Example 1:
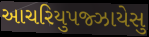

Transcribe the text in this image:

આચરિયુપજ્ઝાયેસુ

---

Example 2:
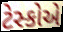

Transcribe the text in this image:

ટેસ્કોએ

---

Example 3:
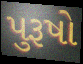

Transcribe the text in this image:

પુરૂષો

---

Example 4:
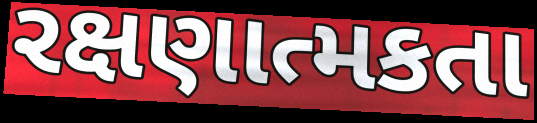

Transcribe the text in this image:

રક્ષણાત્મકતા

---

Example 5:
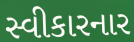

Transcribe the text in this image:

સ્વીકારનાર